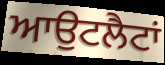
ਆਉਟਲੈਟਾਂ